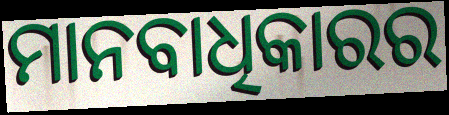
ମାନବାଧିକାରର